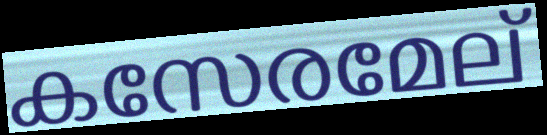
കസേരമേല്